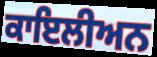
ਕਾਇਲੀਅਨ